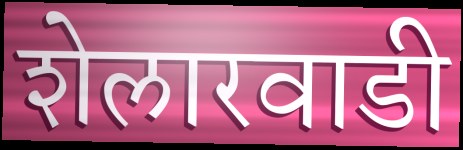
शेलारवाडी